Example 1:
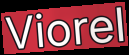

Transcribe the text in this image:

Viorel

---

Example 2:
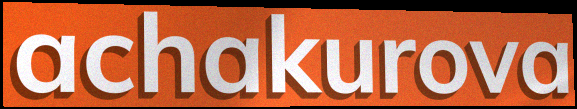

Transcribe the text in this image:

achakurova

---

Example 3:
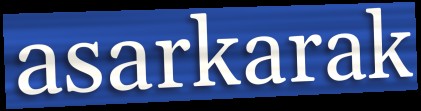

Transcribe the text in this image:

asarkarak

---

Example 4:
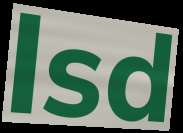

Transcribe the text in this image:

lsd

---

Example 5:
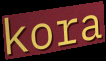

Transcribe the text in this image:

kora